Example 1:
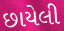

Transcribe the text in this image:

છાયેલી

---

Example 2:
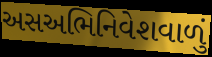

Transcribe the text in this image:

અસઅભિનિવેશવાળું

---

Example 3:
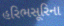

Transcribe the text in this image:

હરિભસૂરિના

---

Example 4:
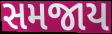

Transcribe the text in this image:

સમજાય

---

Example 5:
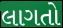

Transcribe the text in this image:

લાગતો